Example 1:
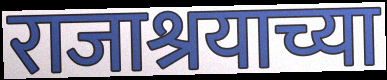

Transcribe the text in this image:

राजाश्रयाच्या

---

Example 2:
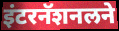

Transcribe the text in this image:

इंटरनॅशनलने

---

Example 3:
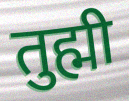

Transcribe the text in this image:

तुह्मी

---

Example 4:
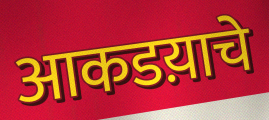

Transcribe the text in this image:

आकडय़ाचे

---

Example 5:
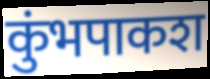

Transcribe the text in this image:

कुंभपाकश